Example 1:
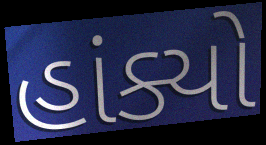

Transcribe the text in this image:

હાંક્યો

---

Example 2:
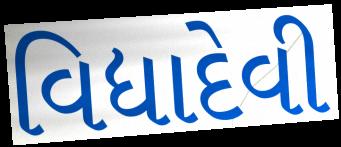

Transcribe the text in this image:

વિદ્યાદેવી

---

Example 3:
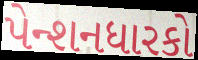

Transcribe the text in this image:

પેન્શનધારકો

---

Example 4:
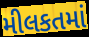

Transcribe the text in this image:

મીલકતમાં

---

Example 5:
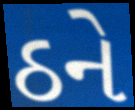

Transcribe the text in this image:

ઠને